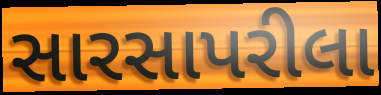
સારસાપરીલા